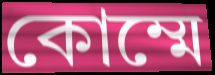
কোম্মে